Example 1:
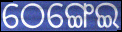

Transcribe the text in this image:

ଠେଙ୍ଗେଇ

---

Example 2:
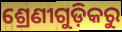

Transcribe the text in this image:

ଶ୍ରେଣୀଗୁଡ଼ିକରୁ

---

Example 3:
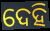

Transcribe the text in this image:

ଦେହି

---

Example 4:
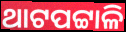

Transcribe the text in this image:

ଥାଟପଟ୍ଟାଳି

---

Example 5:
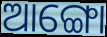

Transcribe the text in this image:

ଆଙ୍ଗୋ